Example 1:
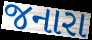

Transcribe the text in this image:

જનારા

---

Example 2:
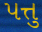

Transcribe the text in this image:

પત્તુ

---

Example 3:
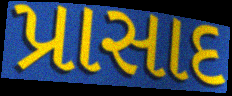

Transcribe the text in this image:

પ્રાસાદ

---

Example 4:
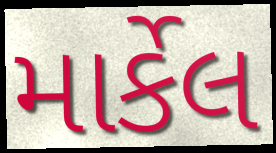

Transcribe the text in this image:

માર્કેલ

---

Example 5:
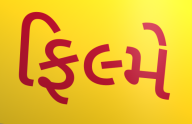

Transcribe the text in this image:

ફિલ્મે